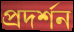
প্ৰদৰ্শন